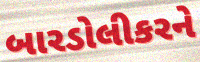
બારડોલીકરને